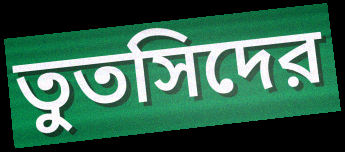
তুতসিদের